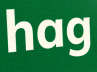
hag